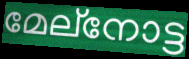
മേല്നോട്ട